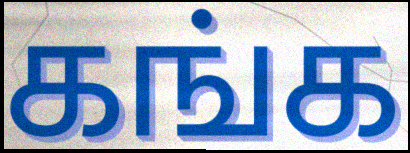
கங்க